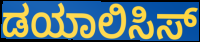
ಡಯಾಲಿಸಿಸ್